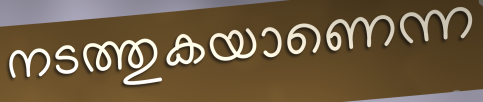
നടത്തുകയാണെന്ന